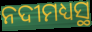
ନଦୀମଧ୍ୟସ୍ଥ